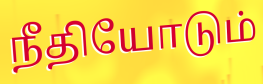
நீதியோடும்